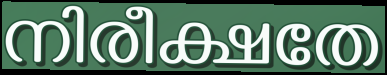
നിരീക്ഷതേ